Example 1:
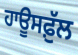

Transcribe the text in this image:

ਹਾਊਸਫ਼ੁੱਲ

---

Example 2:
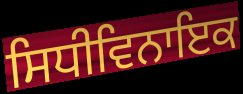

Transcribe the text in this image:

ਸਿਧੀਵਿਨਾਇਕ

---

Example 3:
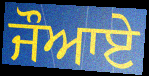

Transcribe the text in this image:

ਜੌਆਏ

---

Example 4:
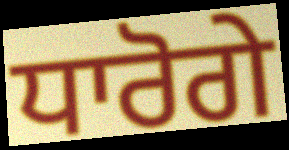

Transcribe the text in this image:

ਧਾਰੋਗੇ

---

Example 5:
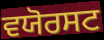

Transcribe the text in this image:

ਵਯੋਰਸਟ